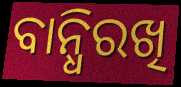
ବାନ୍ଧିରଖି